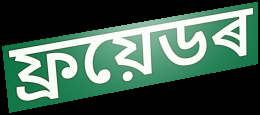
ফ্ৰয়েডৰ